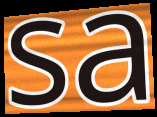
sa